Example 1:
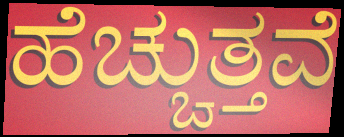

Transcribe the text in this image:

ಹೆಚ್ಚುತ್ತವೆ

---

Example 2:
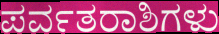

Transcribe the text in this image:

ಪರ್ವತರಾಶಿಗಳು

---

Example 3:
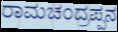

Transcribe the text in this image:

ರಾಮಚಂದ್ರಪ್ಪನ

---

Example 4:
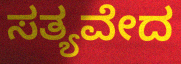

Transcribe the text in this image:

ಸತ್ಯವೇದ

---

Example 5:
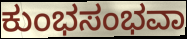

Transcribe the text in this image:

ಕುಂಭಸಂಭವಾ